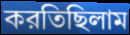
করতিছিলাম